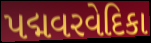
પદ્મવરવેદિકા